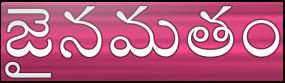
జైనమతం